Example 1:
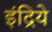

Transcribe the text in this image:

इंद्रिये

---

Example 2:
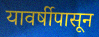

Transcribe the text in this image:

यावर्षीपासून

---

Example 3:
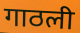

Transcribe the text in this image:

गाठली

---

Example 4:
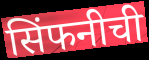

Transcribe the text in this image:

सिंफनीची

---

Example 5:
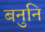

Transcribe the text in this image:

बनुनि